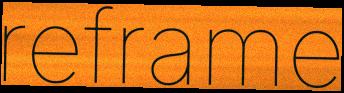
reframe